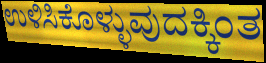
ಉಳಿಸಿಕೊಳ್ಳುವುದಕ್ಕಿಂತ